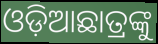
ଓଡ଼ିଆଛାତ୍ରଙ୍କୁ